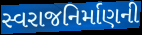
સ્વરાજનિર્માણની